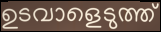
ഉടവാളെടുത്ത്